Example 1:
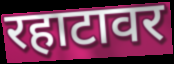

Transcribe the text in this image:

रहाटावर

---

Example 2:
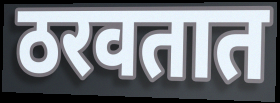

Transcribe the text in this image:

ठरवतात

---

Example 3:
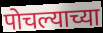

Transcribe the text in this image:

पोचल्याच्या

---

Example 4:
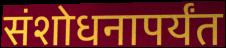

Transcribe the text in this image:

संशोधनापर्यंत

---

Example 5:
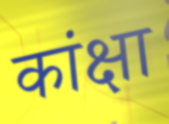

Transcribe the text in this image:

कांक्षा